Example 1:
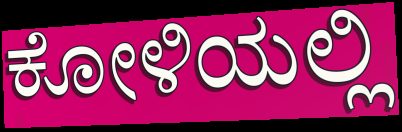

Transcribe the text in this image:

ಕೋಳಿಯಲ್ಲಿ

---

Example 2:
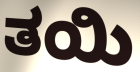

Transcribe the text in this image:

ತಯಿ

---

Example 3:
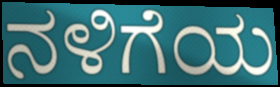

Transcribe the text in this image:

ನಳಿಗೆಯ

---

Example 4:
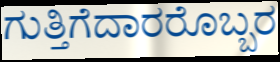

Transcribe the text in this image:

ಗುತ್ತಿಗೆದಾರರೊಬ್ಬರ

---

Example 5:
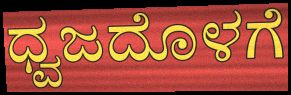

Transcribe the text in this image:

ಧ್ವಜದೊಳಗೆ